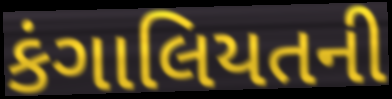
કંગાલિયતની